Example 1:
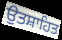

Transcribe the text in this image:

ਉੁਤਸ਼ਾਹਿਤ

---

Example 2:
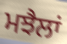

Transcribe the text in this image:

ਮਝੈਲਾਂ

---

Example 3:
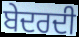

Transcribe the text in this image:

ਬੇਦਰਦੀ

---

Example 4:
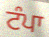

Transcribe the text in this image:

ਟੰਪਾ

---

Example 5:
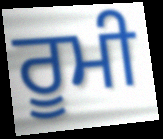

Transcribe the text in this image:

ਰੂਮੀ